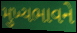
મુખ્યભાવને